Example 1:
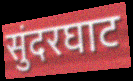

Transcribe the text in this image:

सुंदरघाट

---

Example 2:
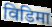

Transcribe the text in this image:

विडिमा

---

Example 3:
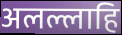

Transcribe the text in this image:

अलल्लाहि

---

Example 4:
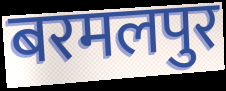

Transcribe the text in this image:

बरमलपुर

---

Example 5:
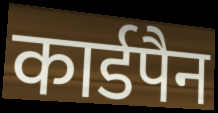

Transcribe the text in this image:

कार्डपैन